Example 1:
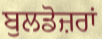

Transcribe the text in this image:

ਬੁਲਡੋਜ਼ਰਾਂ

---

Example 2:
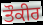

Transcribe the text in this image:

ਤੌਕੀਰ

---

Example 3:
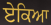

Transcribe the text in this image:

ਏਕਿਆ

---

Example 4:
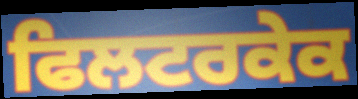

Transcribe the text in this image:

ਫਿਲਟਰਕੇਕ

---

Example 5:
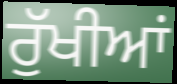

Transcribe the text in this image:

ਰੁੱਖੀਆਂ